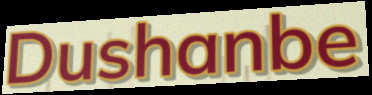
Dushanbe